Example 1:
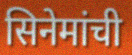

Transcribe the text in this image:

सिनेमांची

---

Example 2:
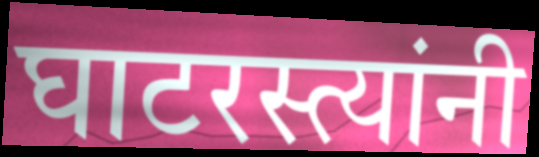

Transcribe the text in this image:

घाटरस्त्यांनी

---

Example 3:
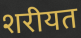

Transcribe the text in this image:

शरीयत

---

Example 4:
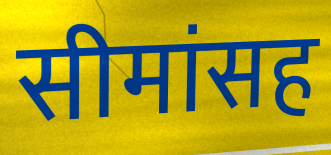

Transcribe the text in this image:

सीमांसह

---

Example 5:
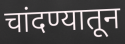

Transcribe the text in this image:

चांदण्यातून